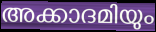
അക്കാദമിയും